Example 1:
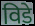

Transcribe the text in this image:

विडे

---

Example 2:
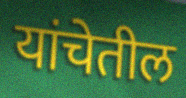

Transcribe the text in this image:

यांचेतील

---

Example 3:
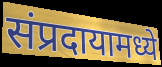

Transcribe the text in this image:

संप्रदायामध्ये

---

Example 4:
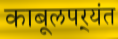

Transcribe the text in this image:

काबूलपर्यंत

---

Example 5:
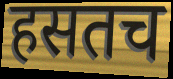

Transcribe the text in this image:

हसतच